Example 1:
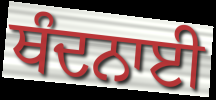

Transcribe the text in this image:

ਥੰਦਨਾਈ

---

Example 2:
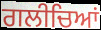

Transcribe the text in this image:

ਗਲੀਚਿਆਂ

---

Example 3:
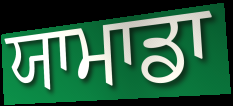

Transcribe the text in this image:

ਯਾਮਾਡਾ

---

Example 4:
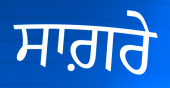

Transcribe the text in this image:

ਸਾਗ਼ਰੇ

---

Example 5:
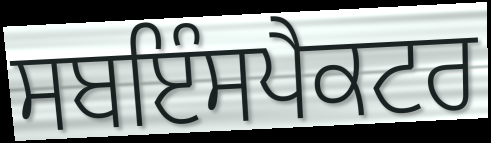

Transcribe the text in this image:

ਸਬਇੰਸਪੈਕਟਰ